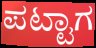
ಪಟ್ಟಾಗ